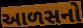
આળસનો